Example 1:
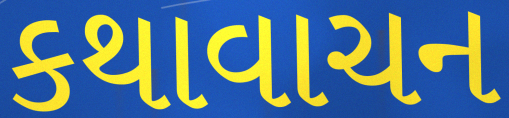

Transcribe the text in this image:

કથાવાચન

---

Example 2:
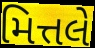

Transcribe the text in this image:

મિત્તલે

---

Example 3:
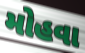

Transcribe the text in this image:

મોહવા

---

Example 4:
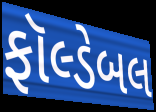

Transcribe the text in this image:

ફૉલ્ડેબલ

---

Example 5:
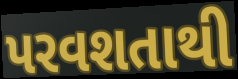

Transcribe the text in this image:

પરવશતાથી